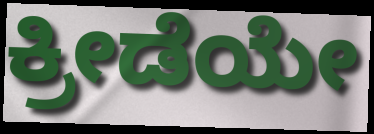
ಕ್ರೀಡೆಯೇ